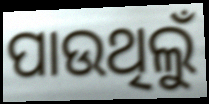
ପାଉଥିଲୁଁ